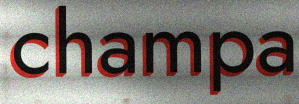
champa